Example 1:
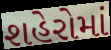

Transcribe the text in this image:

શહેરોમાં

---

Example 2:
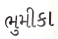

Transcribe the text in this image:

ભુમીકા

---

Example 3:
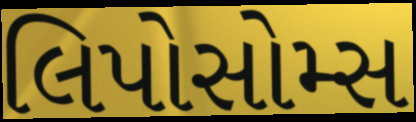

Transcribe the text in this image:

લિપોસોમ્સ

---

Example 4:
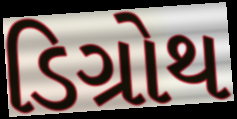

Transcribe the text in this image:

ડિગ્રોથ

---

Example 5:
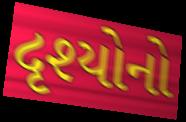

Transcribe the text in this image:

દૃશ્યોનો